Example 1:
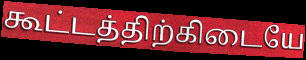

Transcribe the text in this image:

கூட்டத்திற்கிடையே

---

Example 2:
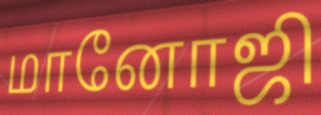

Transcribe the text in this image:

மானோஜி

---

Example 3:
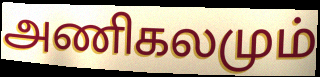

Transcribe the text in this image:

அணிகலமும்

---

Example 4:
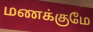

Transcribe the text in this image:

மணக்குமே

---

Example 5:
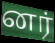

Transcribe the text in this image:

னர்